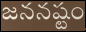
జననష్టం